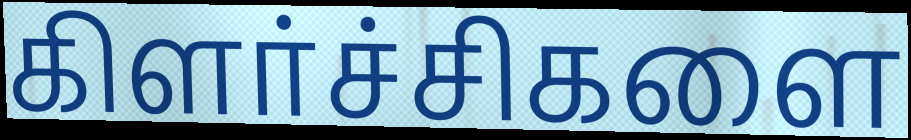
கிளர்ச்சிகளை